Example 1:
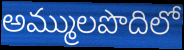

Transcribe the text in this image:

అమ్ములపొదిలో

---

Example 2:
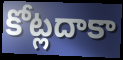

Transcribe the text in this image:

కోట్లదాకా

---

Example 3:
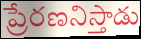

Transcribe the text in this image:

ప్రేరణనిస్తాడు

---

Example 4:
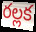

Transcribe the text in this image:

రల్లక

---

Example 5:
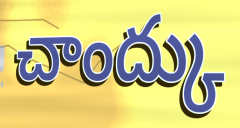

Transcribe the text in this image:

చాంద్కు